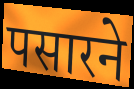
पसारने